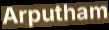
Arputham